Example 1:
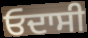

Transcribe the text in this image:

ਓਦਾਸੀ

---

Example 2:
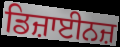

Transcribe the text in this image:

ਡਿਜ਼ਾਈਨਜ਼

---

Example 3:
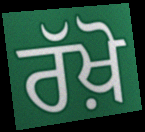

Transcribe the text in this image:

ਰੱਖ਼ੋ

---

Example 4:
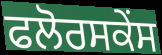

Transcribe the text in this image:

ਫਲੋਰਸਕੇਂਸ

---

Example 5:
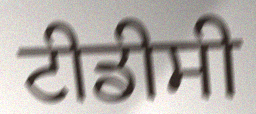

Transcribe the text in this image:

ਟੀਡੀਸੀ